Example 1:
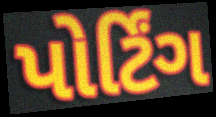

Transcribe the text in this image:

પોર્ટિંગ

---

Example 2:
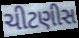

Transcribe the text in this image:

ચીટણીસ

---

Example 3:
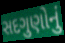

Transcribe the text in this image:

સદગુણોનું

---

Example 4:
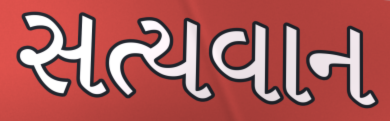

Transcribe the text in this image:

સત્યવાન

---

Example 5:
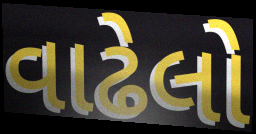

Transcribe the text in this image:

વાઢેલો